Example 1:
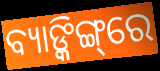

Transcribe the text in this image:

ବ୍ୟାଙ୍କିଙ୍ଗ୍‌ରେ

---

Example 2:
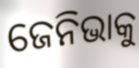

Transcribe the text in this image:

ଜେନିଭାକୁ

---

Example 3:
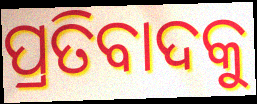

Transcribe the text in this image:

ପ୍ରତିବାଦକୁ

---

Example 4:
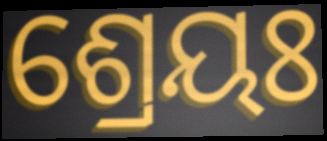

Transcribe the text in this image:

ଶ୍ରେୟଃ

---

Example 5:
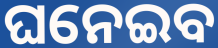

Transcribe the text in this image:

ଘନେଇବ